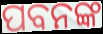
ପବନଙ୍କ